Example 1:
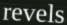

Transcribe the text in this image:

revels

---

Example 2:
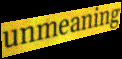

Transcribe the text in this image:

unmeaning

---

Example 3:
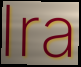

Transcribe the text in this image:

Ira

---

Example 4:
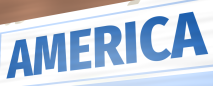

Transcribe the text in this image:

AMERICA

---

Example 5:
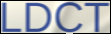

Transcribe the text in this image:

LDCT